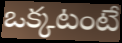
ఒక్కటంటే